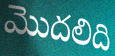
మొదలిది